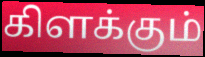
கிளக்கும்